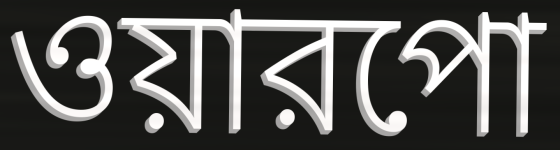
ওয়ারপো